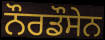
ਨੌਰਡੌਸੇਨ